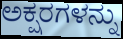
ಅಕ್ಷರಗಳನ್ನು